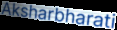
Aksharbharati